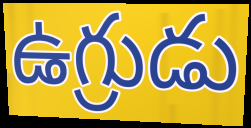
ఉగ్రుడు